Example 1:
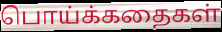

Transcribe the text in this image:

பொய்க்கதைகள்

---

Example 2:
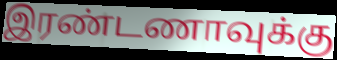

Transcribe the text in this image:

இரண்டணாவுக்கு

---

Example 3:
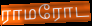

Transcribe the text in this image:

ராமரோட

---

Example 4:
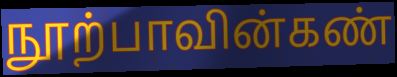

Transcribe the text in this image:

நூற்பாவின்கண்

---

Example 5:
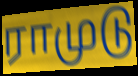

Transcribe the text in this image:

ராமுடு